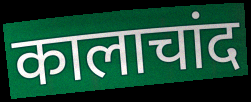
कालाचांद